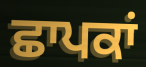
ਛਾਪਕਾਂ